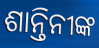
ଶାନ୍ତିନୀଙ୍କ